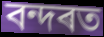
বন্দৰত